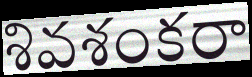
శివశంకరా